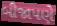
બીજાપણે